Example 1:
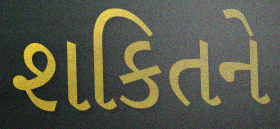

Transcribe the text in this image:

શકિતને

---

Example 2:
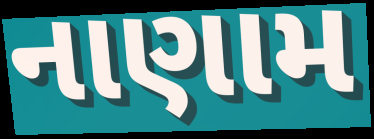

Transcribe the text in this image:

નાણામ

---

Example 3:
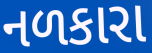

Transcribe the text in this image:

નળકારા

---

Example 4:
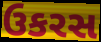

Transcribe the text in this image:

ઉકરસ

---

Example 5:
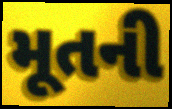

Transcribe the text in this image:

મૂતની